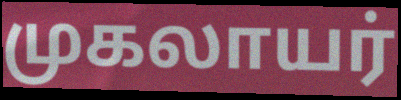
முகலாயர்